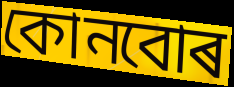
কোনবোৰ